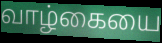
வாழ்கையை